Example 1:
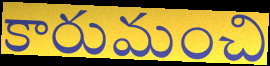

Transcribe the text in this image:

కారుమంచి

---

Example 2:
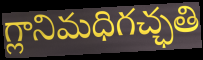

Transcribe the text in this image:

గ్లానిమధిగచ్ఛతి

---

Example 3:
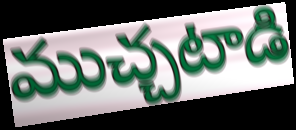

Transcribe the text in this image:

ముచ్చటాడి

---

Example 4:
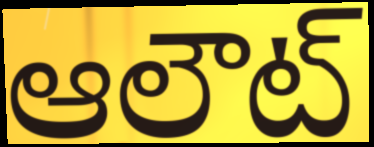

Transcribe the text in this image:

ఆలౌట్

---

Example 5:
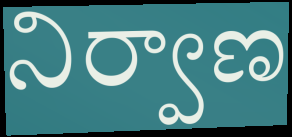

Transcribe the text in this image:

నిర్వాణ